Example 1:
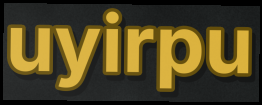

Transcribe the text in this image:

uyirpu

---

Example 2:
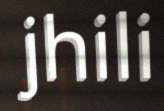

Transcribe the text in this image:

jhili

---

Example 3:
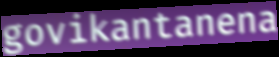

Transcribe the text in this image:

govikantanena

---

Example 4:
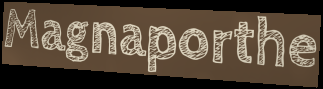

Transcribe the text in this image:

Magnaporthe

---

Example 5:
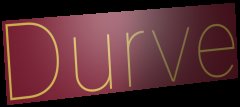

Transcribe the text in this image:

Durve